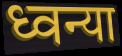
ध्वन्या